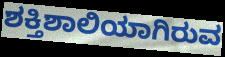
ಶಕ್ತಿಶಾಲಿಯಾಗಿರುವ